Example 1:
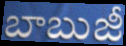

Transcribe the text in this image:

బాబుజీ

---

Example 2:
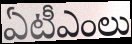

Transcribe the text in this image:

ఏటీఎంలు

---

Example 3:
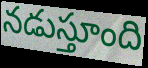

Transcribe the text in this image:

నడుస్తూంది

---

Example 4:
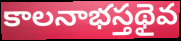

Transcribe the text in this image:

కాలనాభస్తథైవ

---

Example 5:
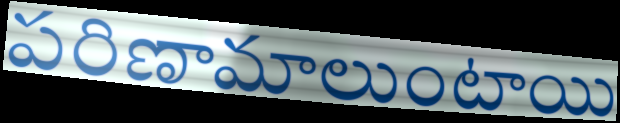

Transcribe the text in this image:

పరిణామాలుంటాయి